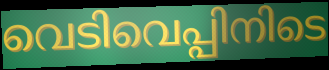
വെടിവെപ്പിനിടെ